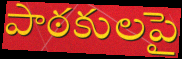
పాఠకులపై